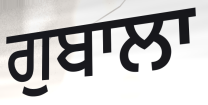
ਗੁਬਾਲਾ